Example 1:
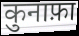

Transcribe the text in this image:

कुनाफ़ा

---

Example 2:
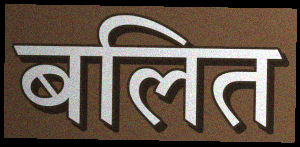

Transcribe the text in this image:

बलित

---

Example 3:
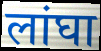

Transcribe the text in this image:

लांघा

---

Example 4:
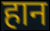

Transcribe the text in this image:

हान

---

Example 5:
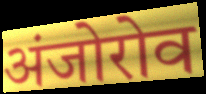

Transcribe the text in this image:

अंजोरोव